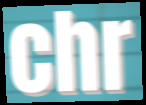
chr